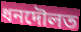
ধনদৌলত